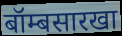
बॉम्बसारखा